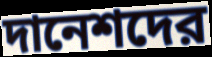
দানেশদের